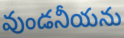
వుండనీయను